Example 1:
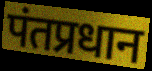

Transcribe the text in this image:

पंतप्रधान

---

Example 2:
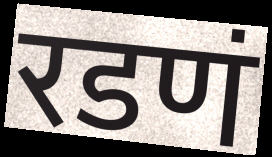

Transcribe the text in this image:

रडणं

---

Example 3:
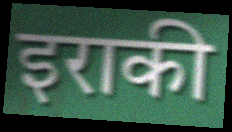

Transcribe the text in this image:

इराकी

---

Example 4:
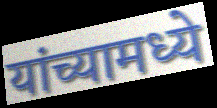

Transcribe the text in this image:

यांच्यामध्ये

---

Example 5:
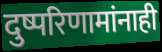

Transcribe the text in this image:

दुष्परिणामांनाही